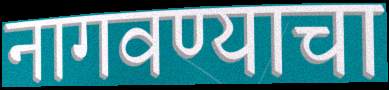
नागवण्याचा